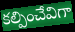
కల్పించేవిగా